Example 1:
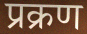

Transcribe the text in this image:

प्रक्रण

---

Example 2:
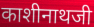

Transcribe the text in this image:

काशीनाथजी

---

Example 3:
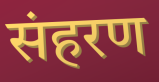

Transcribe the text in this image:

संहरण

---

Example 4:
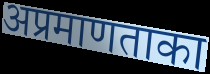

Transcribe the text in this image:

अप्रमाणताका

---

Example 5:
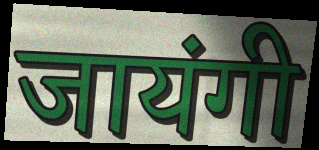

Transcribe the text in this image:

जायंगी